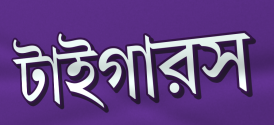
টাইগারস